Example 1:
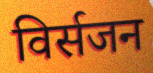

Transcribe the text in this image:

विर्सजन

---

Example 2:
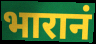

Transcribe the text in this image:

भारानं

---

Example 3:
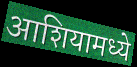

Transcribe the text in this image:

आशियामध्ये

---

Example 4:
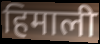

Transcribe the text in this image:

हिमाली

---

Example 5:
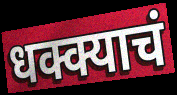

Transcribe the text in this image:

धक्क्याचं